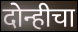
दोन्हीचा